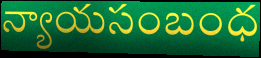
న్యాయసంబంధ